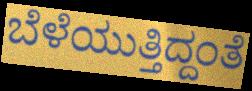
ಬೆಳೆಯುತ್ತಿದ್ದಂತೆ